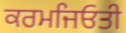
ਕਰਮਜਿਓਤੀ